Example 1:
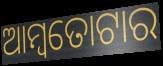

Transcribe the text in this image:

ଆମ୍ବତୋଟାର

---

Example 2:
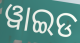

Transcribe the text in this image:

ୱାଇଡ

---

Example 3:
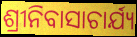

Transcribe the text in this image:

ଶ୍ରୀନିବାସାଚାର୍ଯ୍ୟ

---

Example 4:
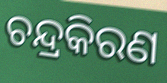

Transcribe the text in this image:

ଚନ୍ଦ୍ରକିରଣ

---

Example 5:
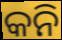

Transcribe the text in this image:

କନି